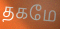
தகமே